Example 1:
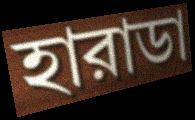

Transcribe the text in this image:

হারাডা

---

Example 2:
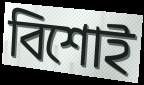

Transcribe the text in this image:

বিশোই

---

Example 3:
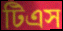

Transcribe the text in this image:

টিএস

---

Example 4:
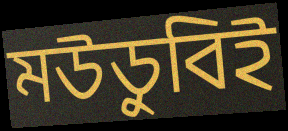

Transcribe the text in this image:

মউডুবিই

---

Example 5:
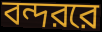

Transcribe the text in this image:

বন্দররে